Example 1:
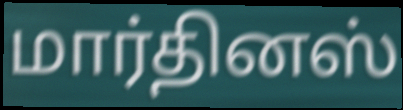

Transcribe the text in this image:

மார்தினஸ்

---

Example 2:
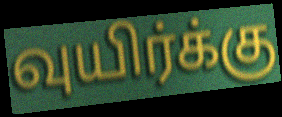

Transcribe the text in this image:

வுயிர்க்கு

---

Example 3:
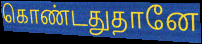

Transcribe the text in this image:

கொண்டதுதானே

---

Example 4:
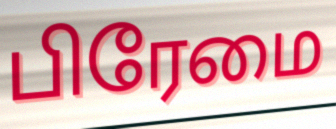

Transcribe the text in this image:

பிரேமை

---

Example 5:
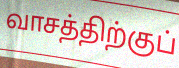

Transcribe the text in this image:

வாசத்திற்குப்